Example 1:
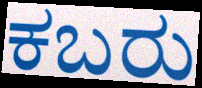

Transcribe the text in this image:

ಕಬರು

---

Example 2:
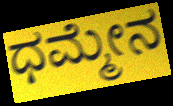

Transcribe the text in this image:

ಧಮ್ಮೇನ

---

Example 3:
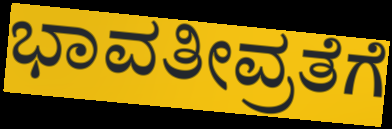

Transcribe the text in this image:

ಭಾವತೀವ್ರತೆಗೆ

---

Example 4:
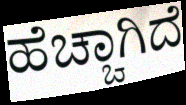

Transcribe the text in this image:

ಹೆಚ್ಚಾಗಿದೆ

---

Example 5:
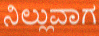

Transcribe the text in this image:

ನಿಲ್ಲುವಾಗ